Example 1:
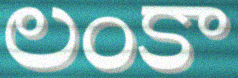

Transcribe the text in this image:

లంకా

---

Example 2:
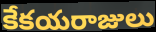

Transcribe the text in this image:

కేకయరాజులు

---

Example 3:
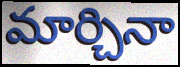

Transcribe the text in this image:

మార్చినా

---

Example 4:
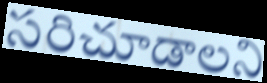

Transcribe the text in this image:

సరిచూడాలని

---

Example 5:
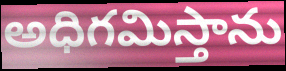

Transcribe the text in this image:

అధిగమిస్తాను